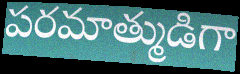
పరమాత్ముడిగా